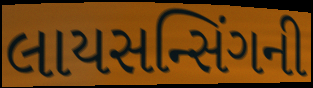
લાયસન્સિંગની